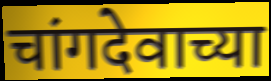
चांगदेवाच्या